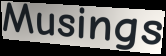
Musings